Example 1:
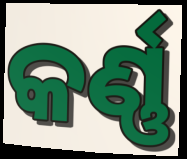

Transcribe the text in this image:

କର୍ଣ୍ଣ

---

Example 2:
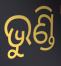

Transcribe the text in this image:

ଭୁଣ୍ଡି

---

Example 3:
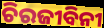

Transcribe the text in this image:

ଚିରଜୀବିନୀ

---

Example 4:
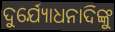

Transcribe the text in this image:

ଦୁର୍ଯ୍ୟୋଧନାଦିଙ୍କୁ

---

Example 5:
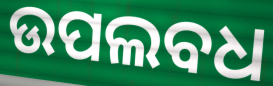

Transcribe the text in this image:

ଉପଲବଧ